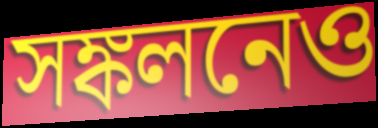
সঙ্কলনেও